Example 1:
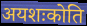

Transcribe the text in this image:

अयशःकोति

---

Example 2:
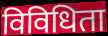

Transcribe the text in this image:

विविधिता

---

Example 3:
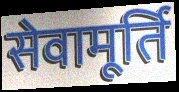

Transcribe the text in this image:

सेवामूर्ति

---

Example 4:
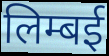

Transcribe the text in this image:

लिम्बई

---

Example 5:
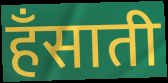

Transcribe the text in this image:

हँसाती